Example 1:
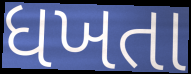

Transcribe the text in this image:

ધખતા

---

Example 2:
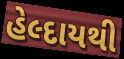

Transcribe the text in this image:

હેલ્દાયથી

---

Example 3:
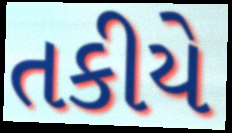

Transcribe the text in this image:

તકીયે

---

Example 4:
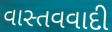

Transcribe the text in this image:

વાસ્તવવાદી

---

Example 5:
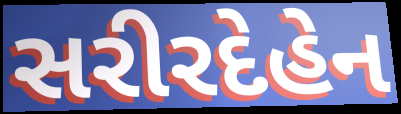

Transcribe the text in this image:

સરીરદેહેન